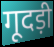
गूदड़ी